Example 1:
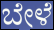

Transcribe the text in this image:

ಬೇಳೆ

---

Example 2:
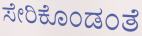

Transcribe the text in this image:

ಸೇರಿಕೊಂಡಂತೆ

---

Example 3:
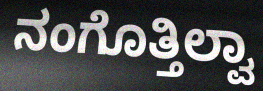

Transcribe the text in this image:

ನಂಗೊತ್ತಿಲ್ವಾ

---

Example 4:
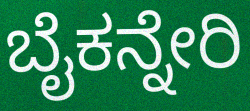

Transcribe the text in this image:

ಬೈಕನ್ನೇರಿ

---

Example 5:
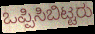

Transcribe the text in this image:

ಒಪ್ಪಿಸಿಬಿಟ್ಟರು